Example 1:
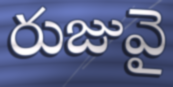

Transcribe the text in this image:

రుజువై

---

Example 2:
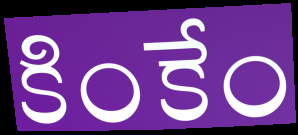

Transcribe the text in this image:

కింకేం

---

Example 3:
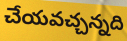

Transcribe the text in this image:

చేయవచ్చన్నది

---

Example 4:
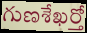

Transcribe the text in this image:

గుణశేఖర్తో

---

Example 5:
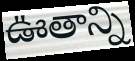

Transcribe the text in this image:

ఊతాన్ని